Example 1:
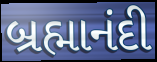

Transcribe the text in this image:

બ્રહ્માનંદી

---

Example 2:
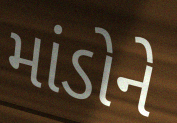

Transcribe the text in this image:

માંડોને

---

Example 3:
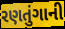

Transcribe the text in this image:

રણતુંગાની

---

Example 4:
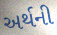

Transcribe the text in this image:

અર્થની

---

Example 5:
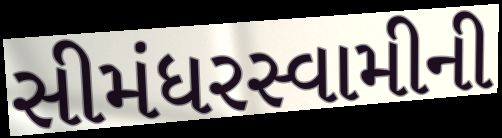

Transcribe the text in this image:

સીમંધરસ્વામીની